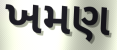
ખમણ